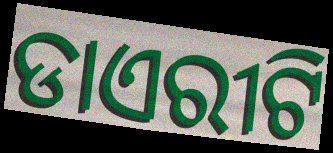
ଡାଏରୀଟି